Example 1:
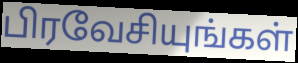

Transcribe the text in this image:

பிரவேசியுங்கள்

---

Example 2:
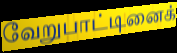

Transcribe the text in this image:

வேறுபாட்டினைக்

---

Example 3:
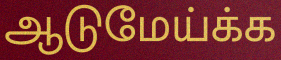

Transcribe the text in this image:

ஆடுமேய்க்க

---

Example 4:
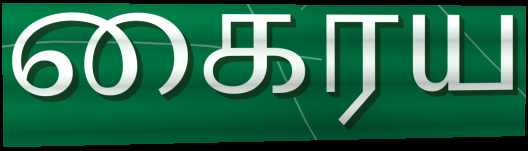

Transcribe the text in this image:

கைரய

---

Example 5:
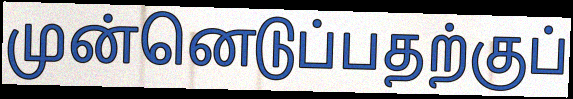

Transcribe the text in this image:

முன்னெடுப்பதற்குப்